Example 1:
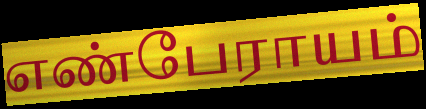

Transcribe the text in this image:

எண்பேராயம்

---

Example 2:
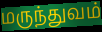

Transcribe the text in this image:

மருந்துவம்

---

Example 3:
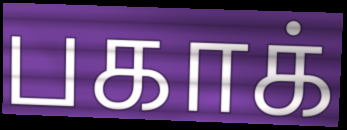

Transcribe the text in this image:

பகாக்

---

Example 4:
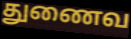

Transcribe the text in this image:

துணைவ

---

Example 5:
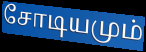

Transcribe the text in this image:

சோடியமும்